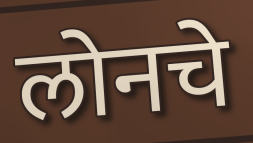
लोनचे